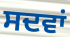
ਸਦਵਾਂ